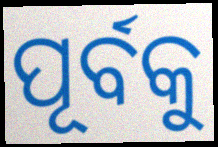
ପୂର୍ବକୁ